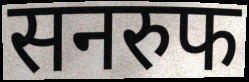
सनरुफ